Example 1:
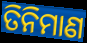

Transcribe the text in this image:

ତିନିମାଣ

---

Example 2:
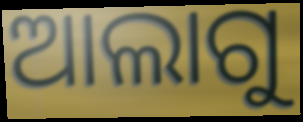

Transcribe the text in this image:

ଆଲାଗୁ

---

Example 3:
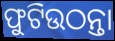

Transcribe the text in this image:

ଫୁଟିଉଠନ୍ତା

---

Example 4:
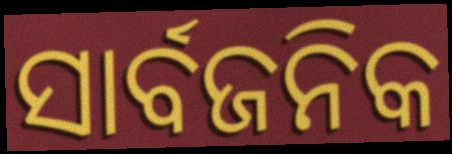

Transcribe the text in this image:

ସାର୍ବଜନିକ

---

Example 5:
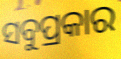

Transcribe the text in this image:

ସବୁପ୍ରକାର